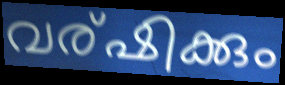
വര്ഷിക്കും